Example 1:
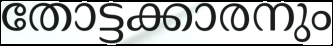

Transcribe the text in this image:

തോട്ടക്കാരനും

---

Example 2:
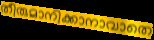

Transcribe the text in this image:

തീരുമാനിക്കാനാവാതെ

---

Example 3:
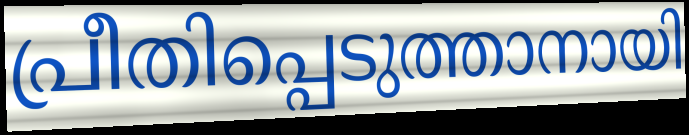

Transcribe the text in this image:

പ്രീതിപ്പെടുത്താനായി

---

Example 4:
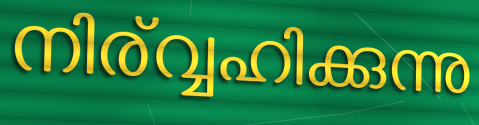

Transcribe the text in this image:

നിര്വ്വഹിക്കുന്നു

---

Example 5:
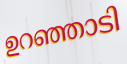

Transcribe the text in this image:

ഉറഞ്ഞാടി